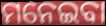
ମନେଇବା